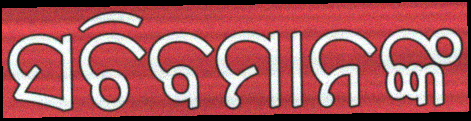
ସଚିବମାନଙ୍କ